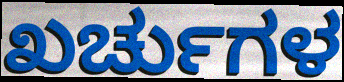
ಖರ್ಚುಗಳ